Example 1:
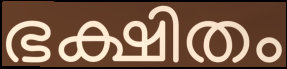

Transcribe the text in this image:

ഭക്ഷിതം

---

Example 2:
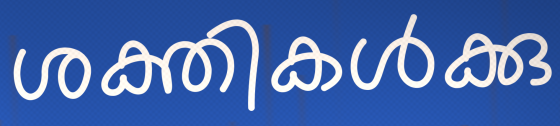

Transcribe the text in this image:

ശക്തികൾക്കു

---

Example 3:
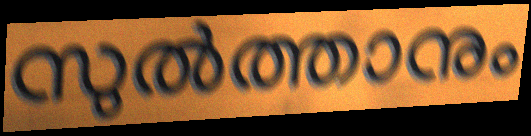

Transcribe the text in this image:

സുൽത്താനും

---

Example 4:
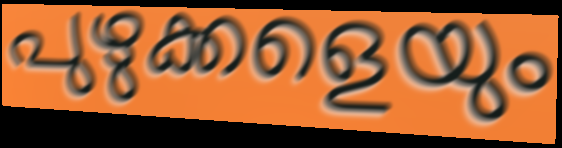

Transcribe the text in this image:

പുഴുക്കളെയും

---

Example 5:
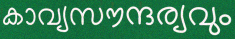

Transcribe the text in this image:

കാവ്യസൗന്ദര്യവും